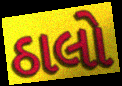
ઠાલો